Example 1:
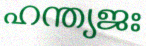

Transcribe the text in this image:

ഹന്ത്യജഃ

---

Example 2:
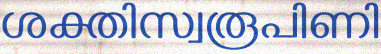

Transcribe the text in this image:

ശക്തിസ്വരൂപിണി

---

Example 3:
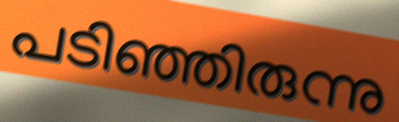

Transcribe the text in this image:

പടിഞ്ഞിരുന്നു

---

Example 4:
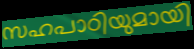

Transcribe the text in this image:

സഹപാഠിയുമായി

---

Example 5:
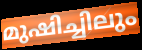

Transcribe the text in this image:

മുഷിച്ചിലും